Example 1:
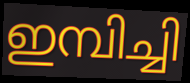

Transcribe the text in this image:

ഇമ്പിച്ചി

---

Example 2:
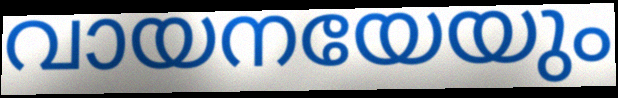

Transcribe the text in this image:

വായനയേയും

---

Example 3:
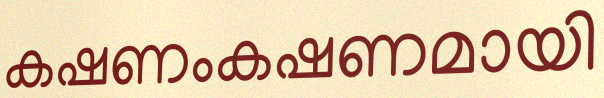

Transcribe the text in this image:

കഷണംകഷണമായി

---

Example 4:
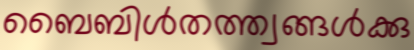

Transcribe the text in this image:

ബൈബിൾതത്ത്വങ്ങൾക്കു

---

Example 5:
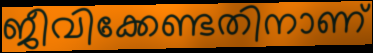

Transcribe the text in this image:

ജീവിക്കേണ്ടതിനാണ്